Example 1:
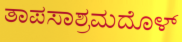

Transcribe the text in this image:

ತಾಪಸಾಶ್ರಮದೊಳ್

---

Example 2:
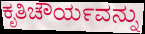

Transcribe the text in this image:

ಕೃತಿಚೌರ್ಯವನ್ನು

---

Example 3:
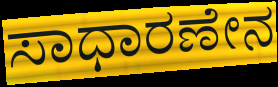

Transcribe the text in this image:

ಸಾಧಾರಣೇನ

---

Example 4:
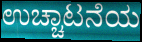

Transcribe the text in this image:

ಉಚ್ಚಾಟನೆಯ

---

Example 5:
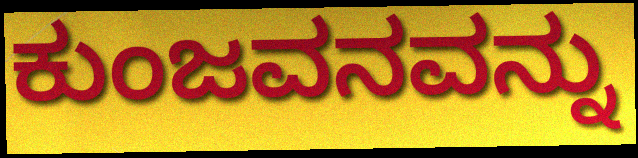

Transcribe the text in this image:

ಕುಂಜವನವನ್ನು